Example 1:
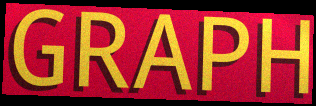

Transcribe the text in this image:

GRAPH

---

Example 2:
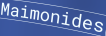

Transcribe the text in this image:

Maimonides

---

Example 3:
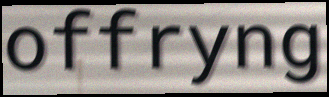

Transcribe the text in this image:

offryng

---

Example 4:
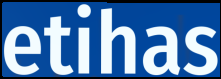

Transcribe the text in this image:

etihas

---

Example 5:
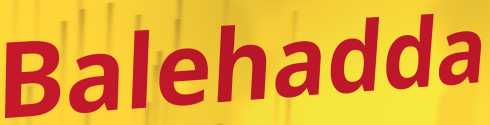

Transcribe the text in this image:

Balehadda